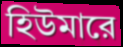
হিউমারে